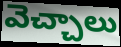
వెచ్చాలు